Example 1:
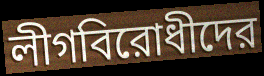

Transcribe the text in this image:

লীগবিরোধীদের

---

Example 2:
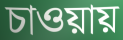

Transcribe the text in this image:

চাওয়ায়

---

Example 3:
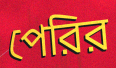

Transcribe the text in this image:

পেরির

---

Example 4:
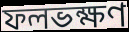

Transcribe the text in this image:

ফলভক্ষণ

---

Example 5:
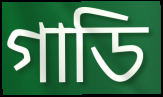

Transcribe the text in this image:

গাডি